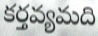
కర్తవ్యమది